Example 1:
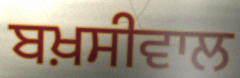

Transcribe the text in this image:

ਬਖ਼ਸੀਵਾਲ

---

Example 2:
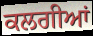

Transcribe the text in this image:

ਕਲਗੀਆਂ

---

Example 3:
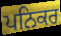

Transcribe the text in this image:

ਪਨਿਕਰ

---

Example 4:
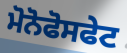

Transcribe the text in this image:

ਮੋਨੋਫੋਸਫੇਟ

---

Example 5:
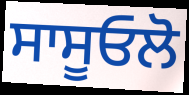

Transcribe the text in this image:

ਸਾਸੂਓਲੋ